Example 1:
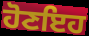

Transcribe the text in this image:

ਹੋਣਇਹ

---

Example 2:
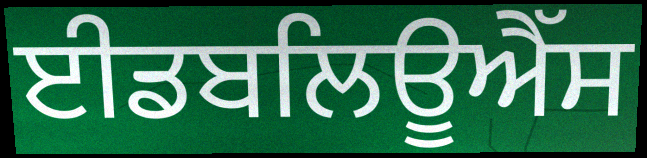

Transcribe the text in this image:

ਈਡਬਲਿਊਐੱਸ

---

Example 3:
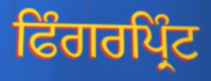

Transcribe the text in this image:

ਫਿੰਗਰਪ੍ਰਿੰਟ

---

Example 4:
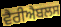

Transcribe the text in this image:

ਵੈਰੀਐਬਲਸ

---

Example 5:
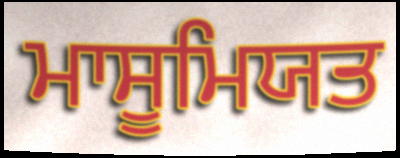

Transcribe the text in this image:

ਮਾਸੂਮਿਯਤ